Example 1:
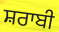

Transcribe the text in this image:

ਸ਼ਰਾਬੀ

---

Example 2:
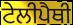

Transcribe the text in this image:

ਟੇਲੀਪੈਥੀ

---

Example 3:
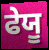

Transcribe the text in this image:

ਫੇਯੂ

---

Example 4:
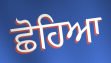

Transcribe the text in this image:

ਛੋਹਿਆ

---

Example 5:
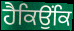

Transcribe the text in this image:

ਹੈਕਿਉਂਕਿ